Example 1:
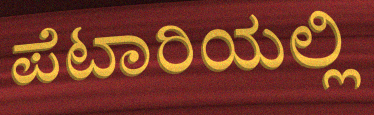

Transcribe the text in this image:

ಪೆಟಾರಿಯಲ್ಲಿ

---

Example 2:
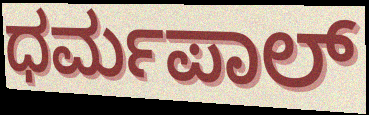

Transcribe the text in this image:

ಧರ್ಮಪಾಲ್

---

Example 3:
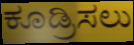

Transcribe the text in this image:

ಕೂಡ್ರಿಸಲು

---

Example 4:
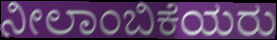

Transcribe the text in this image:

ನೀಲಾಂಬಿಕೆಯರು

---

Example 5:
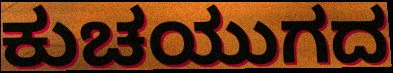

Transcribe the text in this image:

ಕುಚಯುಗದ